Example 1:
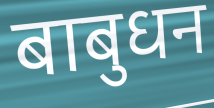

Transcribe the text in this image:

बाबुधन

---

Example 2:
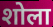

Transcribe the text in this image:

शोला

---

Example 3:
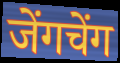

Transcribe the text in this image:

जेंगचेंग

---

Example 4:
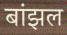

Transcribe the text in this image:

बांझल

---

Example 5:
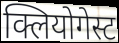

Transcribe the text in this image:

क्लियोगेस्ट